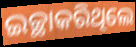
ଇଚ୍ଛାକରିଥିଲେ